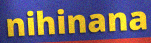
nihinana